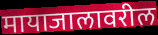
मायाजालावरील